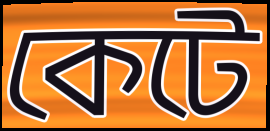
কেটে